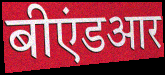
बीएंडआर